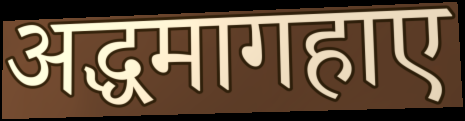
अद्धमागहाए